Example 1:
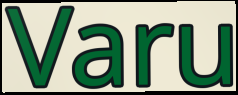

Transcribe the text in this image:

Varu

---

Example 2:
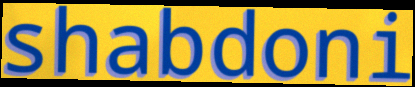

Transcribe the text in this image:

shabdoni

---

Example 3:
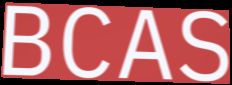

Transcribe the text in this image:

BCAS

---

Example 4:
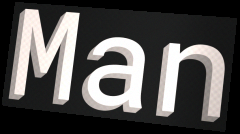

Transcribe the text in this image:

Man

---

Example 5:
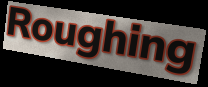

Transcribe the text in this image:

Roughing